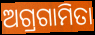
ଅଗ୍ରଗାମିତା